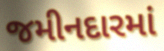
જમીનદારમાં